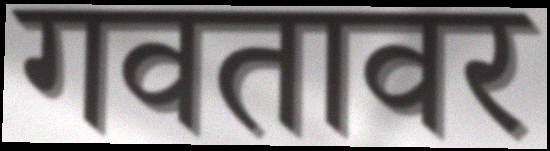
गवतावर